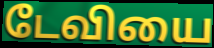
டேவியை